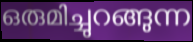
ഒരുമിച്ചുറങ്ങുന്ന